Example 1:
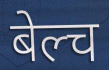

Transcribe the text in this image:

बेल्च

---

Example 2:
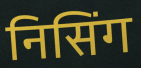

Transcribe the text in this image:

निसिंग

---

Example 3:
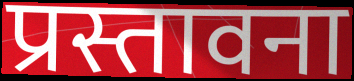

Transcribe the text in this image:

प्रस्‍तावना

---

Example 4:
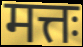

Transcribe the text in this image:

मत्तः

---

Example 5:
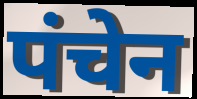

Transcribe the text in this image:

पंचेन